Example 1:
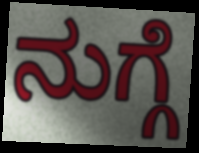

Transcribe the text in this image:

ನುಗ್ಗೆ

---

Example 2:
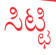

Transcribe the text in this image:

ಸಿಟ್ಟಿ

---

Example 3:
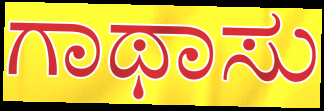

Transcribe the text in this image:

ಗಾಥಾಸು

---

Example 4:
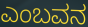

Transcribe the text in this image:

ಎಂಬವನ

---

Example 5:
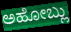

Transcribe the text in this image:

ಅಹೋಬ್ಲು